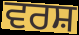
ਵਰਸ਼